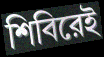
শিবিরেই